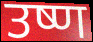
उष्ण